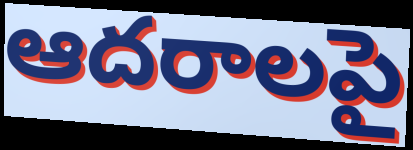
ఆదరాలపై